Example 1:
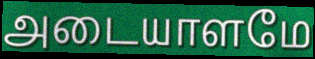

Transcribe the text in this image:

அடையாளமே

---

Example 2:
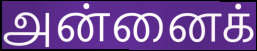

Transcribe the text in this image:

அன்னைக்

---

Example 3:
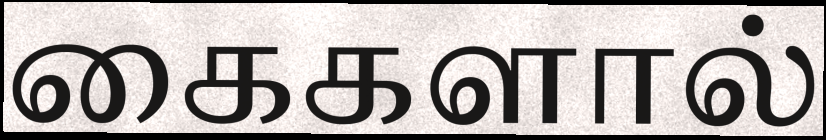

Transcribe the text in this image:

கைகளால்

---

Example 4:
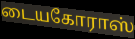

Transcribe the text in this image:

டையகோராஸ்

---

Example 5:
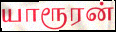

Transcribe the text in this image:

யாரூரன்